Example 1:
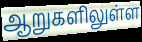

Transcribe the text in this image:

ஆறுகளிலுள்ள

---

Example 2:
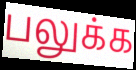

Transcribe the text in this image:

பலுக்க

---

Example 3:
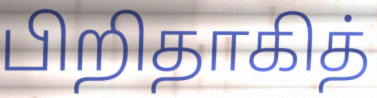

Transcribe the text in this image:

பிறிதாகித்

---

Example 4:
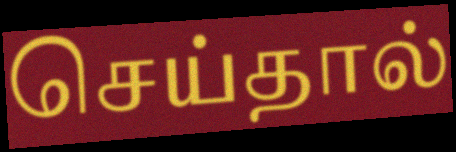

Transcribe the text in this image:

செய்தால்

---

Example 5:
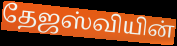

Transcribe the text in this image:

தேஜஸ்வியின்